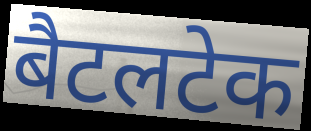
बैटलटेक